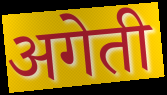
अगेती